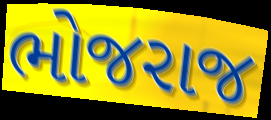
ભોજરાજ